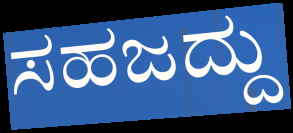
ಸಹಜದ್ದು